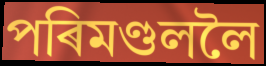
পৰিমণ্ডললৈ